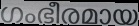
ഗംഭീരമായ